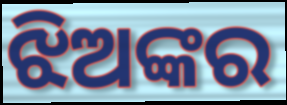
ଝିଅଙ୍କର